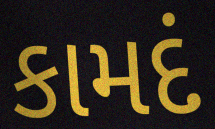
કામદં